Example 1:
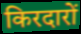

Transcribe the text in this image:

किरदारों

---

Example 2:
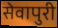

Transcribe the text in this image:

सेवापुरी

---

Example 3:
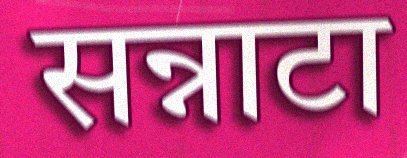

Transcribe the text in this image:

सन्नाटा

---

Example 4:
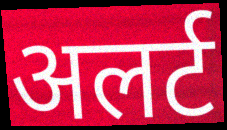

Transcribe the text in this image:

अलर्ट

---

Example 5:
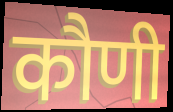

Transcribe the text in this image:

कौणी